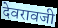
देवरावजी